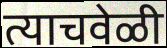
त्याचवेळी